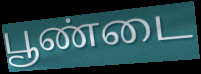
பூண்டை